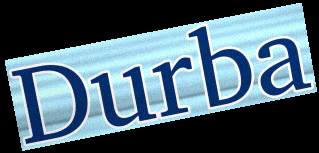
Durba